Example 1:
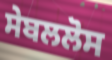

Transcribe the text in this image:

ਸੇਬਲਲੋਸ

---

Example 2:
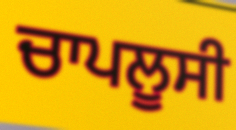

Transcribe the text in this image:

ਚਾਪਲੂਸੀ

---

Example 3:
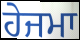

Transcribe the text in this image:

ਹੇਜਮਾ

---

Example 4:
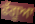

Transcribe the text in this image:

ਫੱਗੂਆ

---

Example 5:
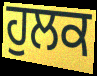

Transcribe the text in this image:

ਹੁਲਕ